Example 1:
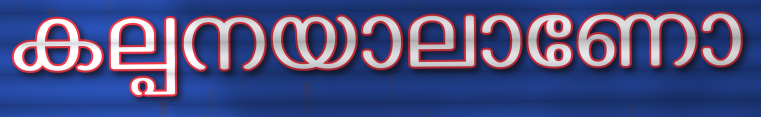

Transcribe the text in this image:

കല്പനയാലാണോ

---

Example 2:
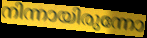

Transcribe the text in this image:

നിന്നായിരുന്നോ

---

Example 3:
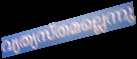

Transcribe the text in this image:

വ്യത്യസ്തമല്ലെന്നു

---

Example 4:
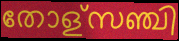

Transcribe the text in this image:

തോള്സഞ്ചി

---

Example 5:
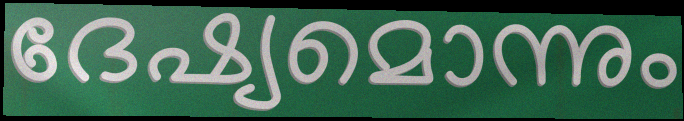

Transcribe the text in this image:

ദേഷ്യമൊന്നും